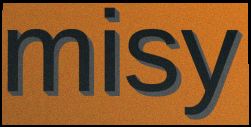
misy